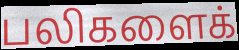
பலிகளைக்